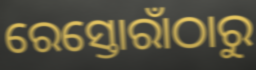
ରେସ୍ତୋରାଁଠାରୁ